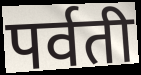
पर्वती